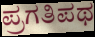
ಪ್ರಗತಿಪಥ